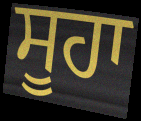
ਸੂਹਾ